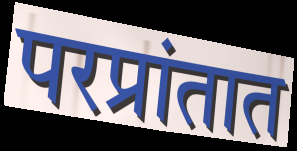
परप्रांतात